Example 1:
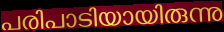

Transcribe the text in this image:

പരിപാടിയായിരുന്നു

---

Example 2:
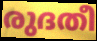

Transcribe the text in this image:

രുദതീ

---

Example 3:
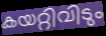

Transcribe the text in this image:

കയറ്റിവിടും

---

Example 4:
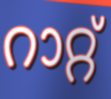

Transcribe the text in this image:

റാറ്റ്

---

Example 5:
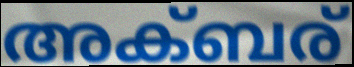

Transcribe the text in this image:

അക്ബര്